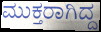
ಮುಕ್ತರಾಗಿದ್ದ